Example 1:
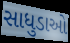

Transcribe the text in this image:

સાધુડાઓ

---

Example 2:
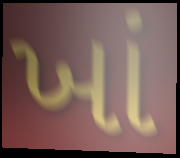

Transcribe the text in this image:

ખાં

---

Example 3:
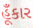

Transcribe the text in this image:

હૂઁકાર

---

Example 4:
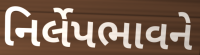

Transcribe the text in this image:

નિર્લેપભાવને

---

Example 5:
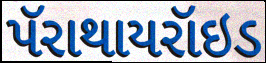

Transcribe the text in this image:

પૅરાથાયરૉઇડ